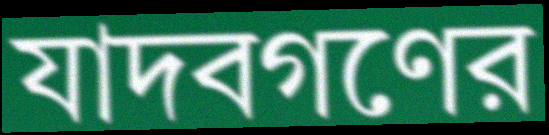
যাদবগণের